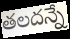
తలదన్నే